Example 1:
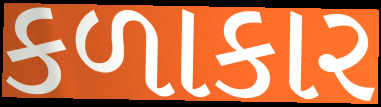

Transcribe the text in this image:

કળાકાર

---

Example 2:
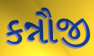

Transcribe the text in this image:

કન્નૌજી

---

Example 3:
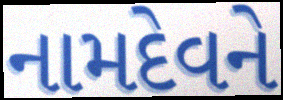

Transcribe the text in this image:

નામદેવને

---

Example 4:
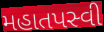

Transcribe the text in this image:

મહાતપસ્વી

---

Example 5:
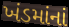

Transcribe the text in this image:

ખંડમાંનાં